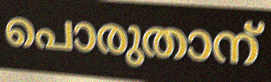
പൊരുതാന്